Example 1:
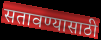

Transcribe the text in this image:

सतावण्यासाठी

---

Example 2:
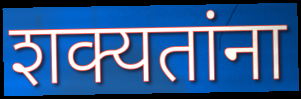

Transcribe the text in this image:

शक्यतांना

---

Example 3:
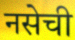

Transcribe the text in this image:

नसेची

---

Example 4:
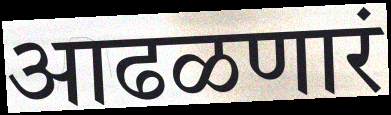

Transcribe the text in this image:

आढळणारं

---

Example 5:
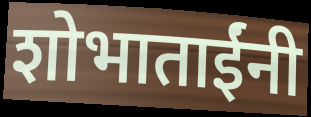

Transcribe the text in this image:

शोभाताईंनी